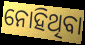
ନୋହିଥିବା